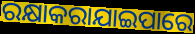
ରକ୍ଷାକରାଯାଇପାରେ